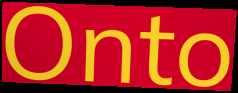
Onto